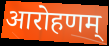
आरोहणम्